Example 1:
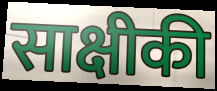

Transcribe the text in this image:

साक्षीकी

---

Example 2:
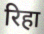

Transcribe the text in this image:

रिहा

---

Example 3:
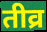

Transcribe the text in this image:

तीव्र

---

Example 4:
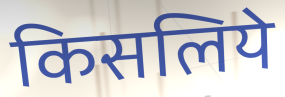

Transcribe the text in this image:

किसलिये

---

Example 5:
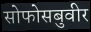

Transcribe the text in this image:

सोफोसबुवीर